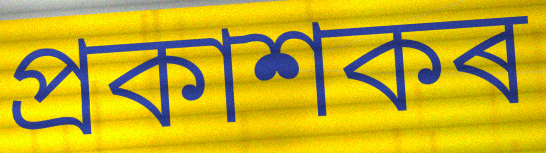
প্ৰকাশকৰ